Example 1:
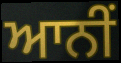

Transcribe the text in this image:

ਆਨੀਂ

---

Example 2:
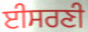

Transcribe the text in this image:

ਈਸਰਣੀ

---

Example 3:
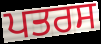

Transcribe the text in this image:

ਪਤਰਸ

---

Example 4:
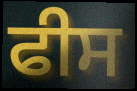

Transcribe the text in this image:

ਫੀਸ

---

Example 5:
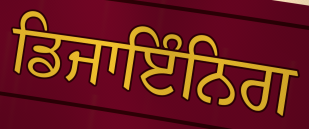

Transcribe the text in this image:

ਡਿਜਾਇੰਨਿਗ